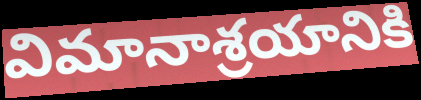
విమానాశ్రయానికి